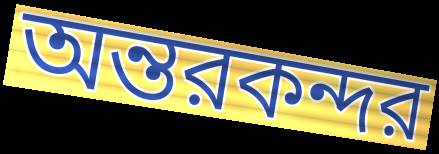
অন্তরকন্দর